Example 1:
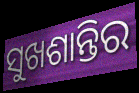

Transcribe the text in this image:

ସୁଖଶାନ୍ତିର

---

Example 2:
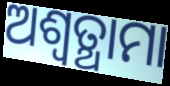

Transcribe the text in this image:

ଅଶ୍ଵତ୍ଥାମା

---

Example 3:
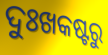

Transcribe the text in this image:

ଦୁଃଖକଷ୍ଟରୁ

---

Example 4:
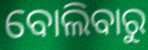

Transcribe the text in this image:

ବୋଲିବାରୁ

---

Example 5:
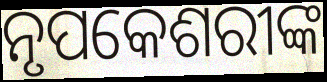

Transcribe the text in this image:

ନୃପକେଶରୀଙ୍କ